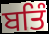
ਬਤਿੰ